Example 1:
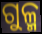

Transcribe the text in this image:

ଗୁଳ୍ମ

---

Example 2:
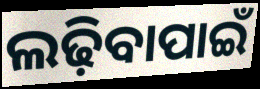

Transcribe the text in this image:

ଲଢ଼ିବାପାଇଁ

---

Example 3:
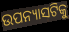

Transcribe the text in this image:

ଉପନ୍ୟାସଟିକୁ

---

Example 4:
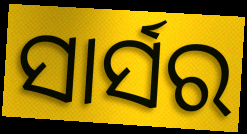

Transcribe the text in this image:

ସାର୍ସର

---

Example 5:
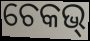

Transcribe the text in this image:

ଚେକଭ୍